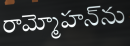
రామ్మోహన్‌ను